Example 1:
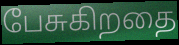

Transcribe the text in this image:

பேசுகிறதை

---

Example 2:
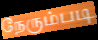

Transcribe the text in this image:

நேரும்படி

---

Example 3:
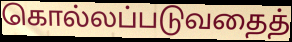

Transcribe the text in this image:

கொல்லப்படுவதைத்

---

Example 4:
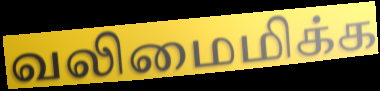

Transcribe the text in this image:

வலிமைமிக்க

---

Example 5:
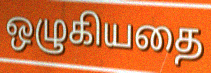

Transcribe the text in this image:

ஒழுகியதை